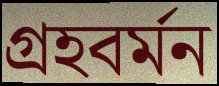
গ্রহবর্মন